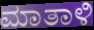
ಮಾತಾಳಿ